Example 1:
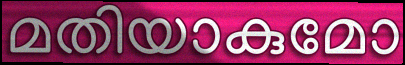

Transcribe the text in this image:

മതിയാകുമോ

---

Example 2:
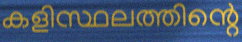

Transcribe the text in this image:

കളിസ്ഥലത്തിന്റെ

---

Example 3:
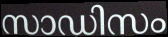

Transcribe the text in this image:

സാഡിസം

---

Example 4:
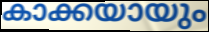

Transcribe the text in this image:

കാക്കയായും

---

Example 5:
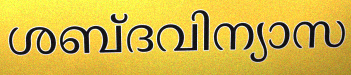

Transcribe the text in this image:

ശബ്ദവിന്യാസ